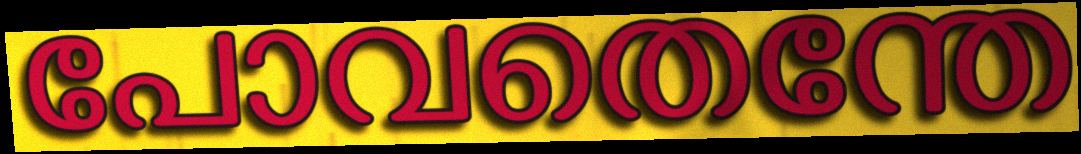
പോവതെന്തേ